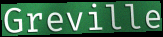
Greville